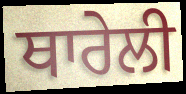
ਥਾਰੇਲੀ